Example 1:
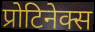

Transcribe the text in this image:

प्रोटिनेक्स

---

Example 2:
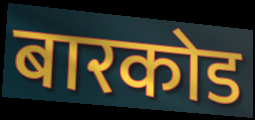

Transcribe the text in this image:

बारकोड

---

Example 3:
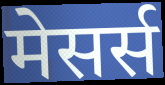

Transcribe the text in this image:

मेसर्स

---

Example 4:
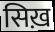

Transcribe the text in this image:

सिख़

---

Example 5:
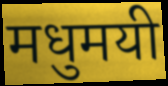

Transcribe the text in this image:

मधुमयी